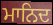
ਮਾਨਿਦ